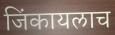
जिंकायलाच